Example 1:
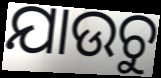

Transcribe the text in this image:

ଯାଉଚୁ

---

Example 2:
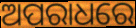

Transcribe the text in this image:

ଅପରାଧରେ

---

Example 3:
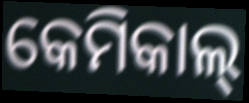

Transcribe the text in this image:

କେମିକାଲ୍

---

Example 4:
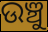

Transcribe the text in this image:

ଉଞ୍ଚୁ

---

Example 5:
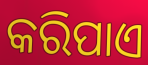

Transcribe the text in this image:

କରିପାଏ